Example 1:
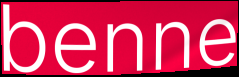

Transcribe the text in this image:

benne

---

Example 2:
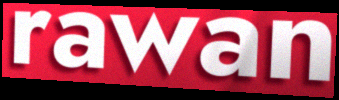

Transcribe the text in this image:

rawan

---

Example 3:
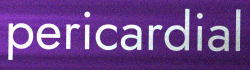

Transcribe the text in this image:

pericardial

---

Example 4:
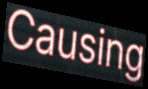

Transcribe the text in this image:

Causing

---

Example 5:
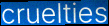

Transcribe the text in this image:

cruelties